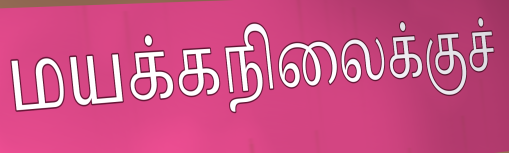
மயக்கநிலைக்குச்